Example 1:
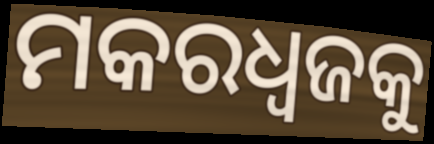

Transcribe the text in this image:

ମକରଧ୍ୱଜକୁ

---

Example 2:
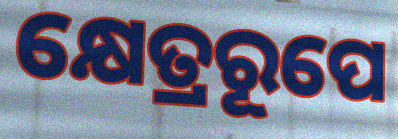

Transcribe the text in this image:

କ୍ଷେତ୍ରରୂପେ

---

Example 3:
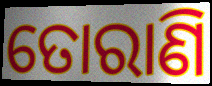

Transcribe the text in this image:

ତୋରାଣି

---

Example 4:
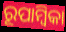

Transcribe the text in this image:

ରୂପାମ୍ବିକା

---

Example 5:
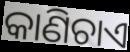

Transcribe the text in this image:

କାଣିଚାଏ